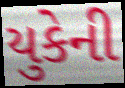
યુકેની